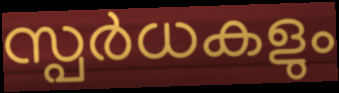
സ്പർധകളും